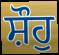
ਸ਼ੌਹੁ